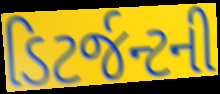
ડિટર્જન્ટની